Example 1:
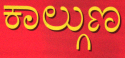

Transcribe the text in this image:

ಕಾಲ್ಗುಣ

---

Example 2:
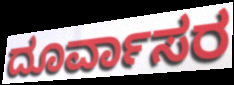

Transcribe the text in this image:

ದೂರ್ವಾಸರ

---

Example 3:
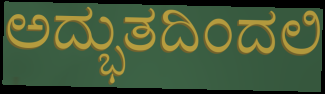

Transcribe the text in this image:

ಅದ್ಭುತದಿಂದಲಿ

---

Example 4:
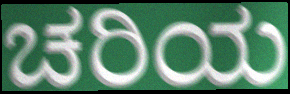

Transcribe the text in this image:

ಚರಿಯ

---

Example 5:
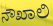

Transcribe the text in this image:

ನೌಖಾಲಿ